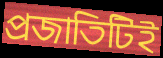
প্রজাতিটিই